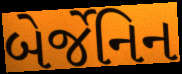
બેર્જેનિન